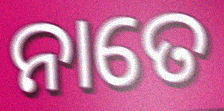
ନାତେ